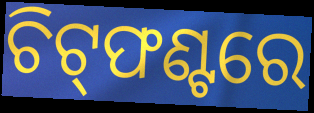
ଚିଟ୍‌ଫଣ୍ଟରେ